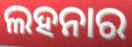
ଲହନାର